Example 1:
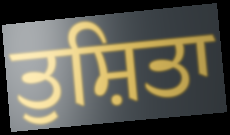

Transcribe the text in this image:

ਤੁਸ਼ਿਤਾ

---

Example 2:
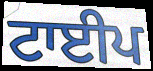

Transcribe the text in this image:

ਟਾਈਪ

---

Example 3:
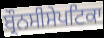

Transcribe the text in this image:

ਬ੍ਰੌਨਸੀਸੇਪਟਿਕਾ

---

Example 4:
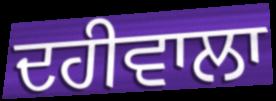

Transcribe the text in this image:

ਦਹੀਵਾਲਾ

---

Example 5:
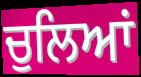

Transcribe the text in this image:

ਚੁਲਿਆਂ